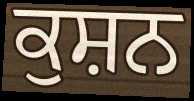
ਕੁਸ਼ਨ